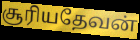
சூரியதேவன்